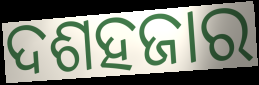
ଦଶହଜାର